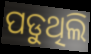
ପଡୁଥିଲି